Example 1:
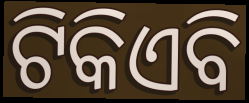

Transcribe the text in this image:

ଟିକିଏବି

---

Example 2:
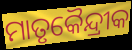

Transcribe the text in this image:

ମାତୃକୈନ୍ଦ୍ରୀକ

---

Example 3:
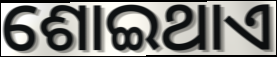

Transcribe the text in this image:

ଶୋଇଥାଏ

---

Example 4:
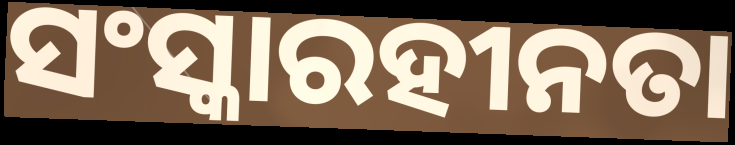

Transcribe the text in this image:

ସଂସ୍କାରହୀନତା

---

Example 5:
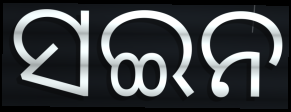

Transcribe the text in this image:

ସଇନ